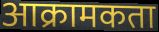
आक्रामकता